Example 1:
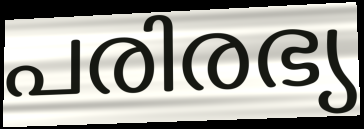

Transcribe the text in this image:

പരിരഭ്യ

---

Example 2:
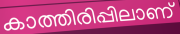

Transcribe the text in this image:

കാത്തിരിപ്പിലാണ്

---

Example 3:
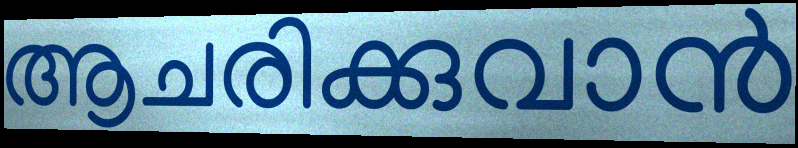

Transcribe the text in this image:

ആചരിക്കുവാൻ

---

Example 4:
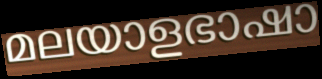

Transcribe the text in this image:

മലയാളഭാഷാ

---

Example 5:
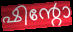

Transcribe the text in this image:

ഷിന്റോ